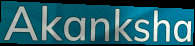
Akanksha